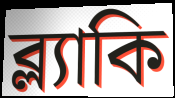
ব্ল্যাকি